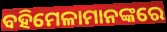
ବହିମେଳାମାନଙ୍କରେ